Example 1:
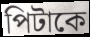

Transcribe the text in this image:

পিটাকে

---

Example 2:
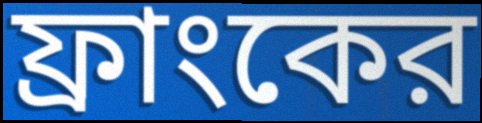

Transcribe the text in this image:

ফ্রাংকের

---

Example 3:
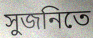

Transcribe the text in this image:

সুজনিতে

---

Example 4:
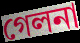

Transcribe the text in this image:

গেলনা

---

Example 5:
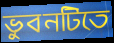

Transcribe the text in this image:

ভুবনটিতে